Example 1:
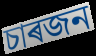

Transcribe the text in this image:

চাৰজন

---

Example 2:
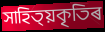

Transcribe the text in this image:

সাহিত্য়কৃতিৰ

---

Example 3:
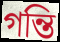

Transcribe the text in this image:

গন্তি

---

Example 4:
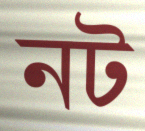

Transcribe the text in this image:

নট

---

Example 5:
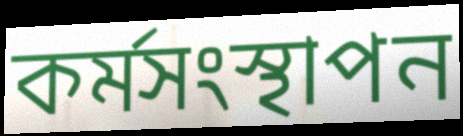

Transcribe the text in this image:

কৰ্মসংস্থাপন